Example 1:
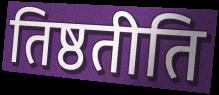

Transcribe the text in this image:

तिष्ठतीति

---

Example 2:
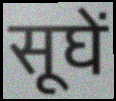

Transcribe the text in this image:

सूघें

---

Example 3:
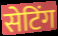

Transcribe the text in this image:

सेटिंग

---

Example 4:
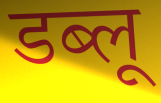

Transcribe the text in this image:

डब्लू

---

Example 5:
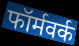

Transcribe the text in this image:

फॉर्मवर्क